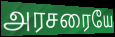
அரசரையே